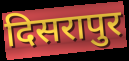
दिसरापुर